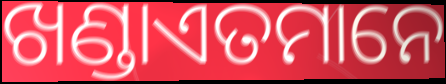
ଖଣ୍ଡାଏତମାନେ